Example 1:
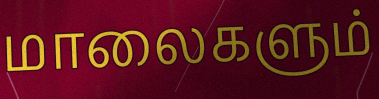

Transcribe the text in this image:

மாலைகளும்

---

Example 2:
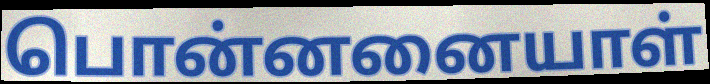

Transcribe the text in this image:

பொன்னனையாள்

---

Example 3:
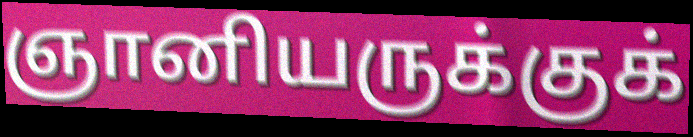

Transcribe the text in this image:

ஞானியருக்குக்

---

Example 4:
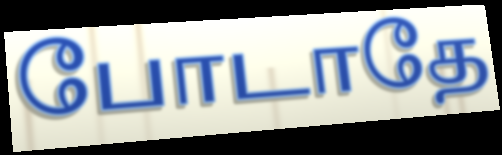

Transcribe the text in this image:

போடாதே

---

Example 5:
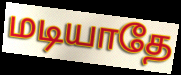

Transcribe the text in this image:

மடியாதே